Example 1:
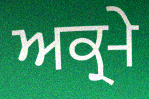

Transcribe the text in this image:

ਅਕ੍ਰ੍ਮੇ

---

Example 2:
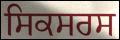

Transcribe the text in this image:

ਸਿਕਸਰਸ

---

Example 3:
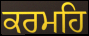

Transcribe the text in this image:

ਕਰਮਹਿ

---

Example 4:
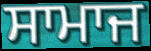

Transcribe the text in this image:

ਸਾਮਾਜ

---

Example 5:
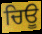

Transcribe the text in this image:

ਚਿਊ